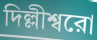
দিল্লীশ্বরো